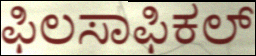
ಫಿಲಸಾಫಿಕಲ್